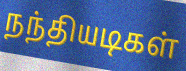
நந்தியடிகள்